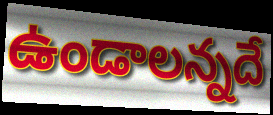
ఉండాలన్నదే